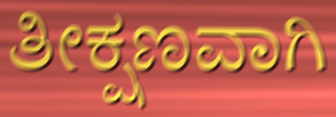
ತೀಕ್ಷಣವಾಗಿ